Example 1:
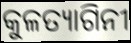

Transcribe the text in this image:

କୁଳତ୍ୟାଗିନୀ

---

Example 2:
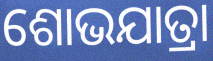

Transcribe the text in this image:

ଶୋଭଯାତ୍ରା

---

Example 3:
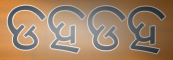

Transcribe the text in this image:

ଡହଡହ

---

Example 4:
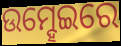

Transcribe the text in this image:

ଉମ୍ହେଇରେ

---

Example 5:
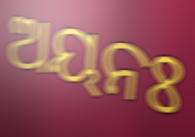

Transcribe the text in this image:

ଅୟନଃ